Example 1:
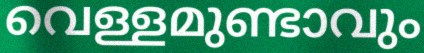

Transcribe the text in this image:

വെള്ളമുണ്ടാവും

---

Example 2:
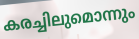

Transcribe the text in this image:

കരച്ചിലുമൊന്നും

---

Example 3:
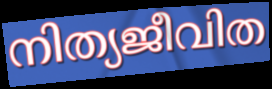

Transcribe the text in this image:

നിത്യജീവിത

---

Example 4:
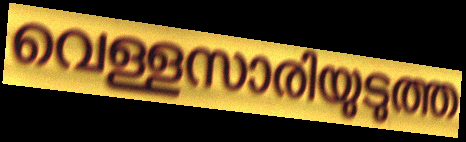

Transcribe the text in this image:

വെള്ളസാരിയുടുത്ത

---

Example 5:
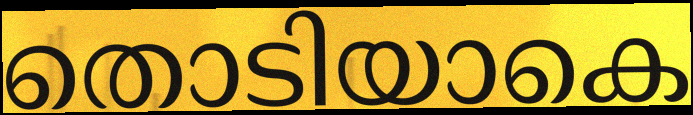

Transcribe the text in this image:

തൊടിയാകെ